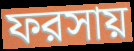
ফরসায়